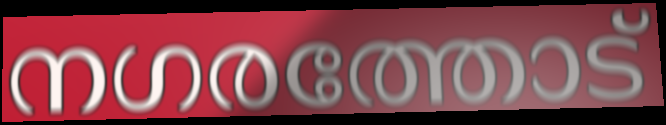
നഗരത്തോട്